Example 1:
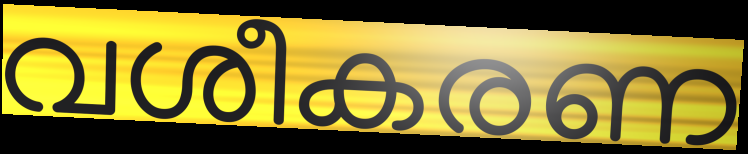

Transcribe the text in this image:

വശീകരണ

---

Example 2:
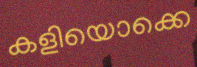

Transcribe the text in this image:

കളിയൊക്കെ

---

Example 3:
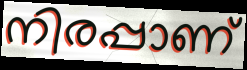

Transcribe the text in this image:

നിരപ്പാണ്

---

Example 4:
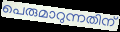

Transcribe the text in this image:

പെരുമാറുന്നതിന്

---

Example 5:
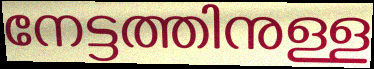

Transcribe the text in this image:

നേട്ടത്തിനുള്ള